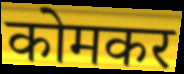
कोमकर